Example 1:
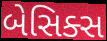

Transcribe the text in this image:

બેસિક્સ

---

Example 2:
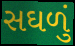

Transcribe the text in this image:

સઘળું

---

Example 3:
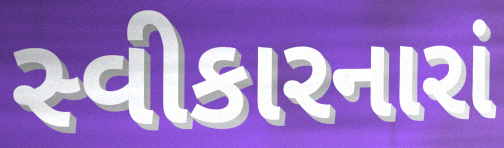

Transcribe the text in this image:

સ્વીકારનારાં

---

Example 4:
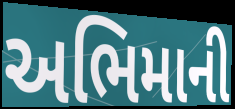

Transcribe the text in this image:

અભિમાની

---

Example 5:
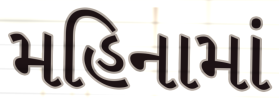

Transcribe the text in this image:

મહિનામાં